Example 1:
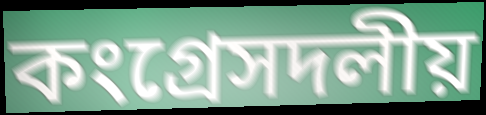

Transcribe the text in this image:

কংগ্রেসদলীয়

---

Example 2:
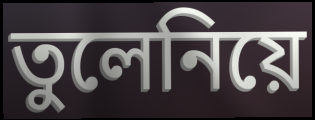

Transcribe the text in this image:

তুলেনিয়ে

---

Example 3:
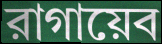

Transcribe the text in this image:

রাগায়েব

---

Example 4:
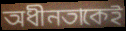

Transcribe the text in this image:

অধীনতাকেই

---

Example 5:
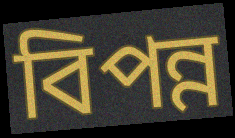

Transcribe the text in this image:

বিপন্ন